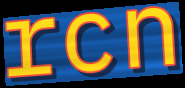
rcn